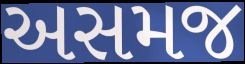
અસમજ